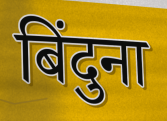
बिंदुना